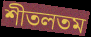
শীতলতম